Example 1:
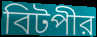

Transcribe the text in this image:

বিটপীর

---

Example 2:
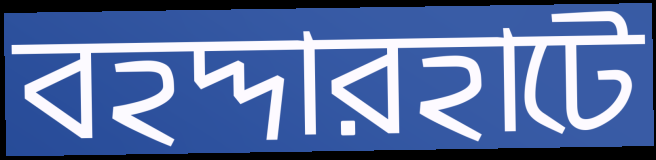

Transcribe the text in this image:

বহদ্দারহাটে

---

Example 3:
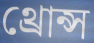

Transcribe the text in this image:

থ্রোন্স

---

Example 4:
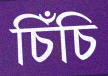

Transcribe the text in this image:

চিঁচি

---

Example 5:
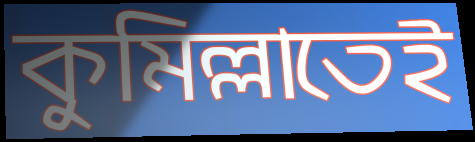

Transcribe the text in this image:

কুমিল্লাতেই